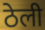
ठेली